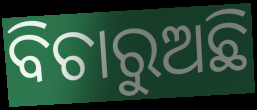
ବିଚାରୁଅଛି